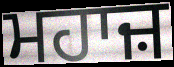
ਮਹਾਜ਼